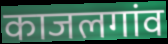
काजलगांव